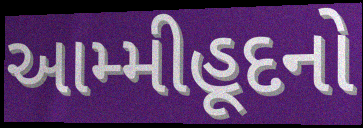
આમ્મીહૂદનો